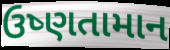
ઉષ્ણતામાન